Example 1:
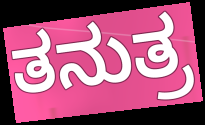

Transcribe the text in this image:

ತನುತ್ರ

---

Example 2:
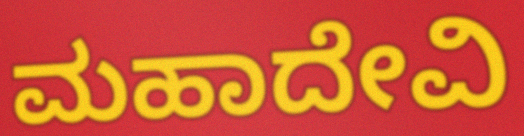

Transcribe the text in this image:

ಮಹಾದೇವಿ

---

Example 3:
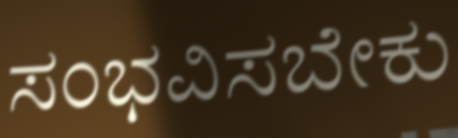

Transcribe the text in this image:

ಸಂಭವಿಸಬೇಕು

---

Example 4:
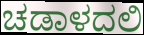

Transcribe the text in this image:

ಚಡಾಳದಲಿ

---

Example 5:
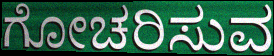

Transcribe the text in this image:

ಗೋಚರಿಸುವ